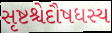
સૃષ્ટશ્ચેદૌષધસ્ય